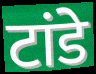
टांडे